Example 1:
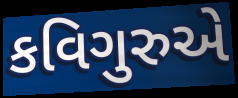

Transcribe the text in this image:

કવિગુરુએ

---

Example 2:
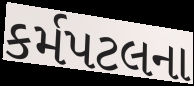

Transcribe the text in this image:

કર્મપટલના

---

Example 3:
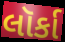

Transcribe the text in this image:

લૉર્કા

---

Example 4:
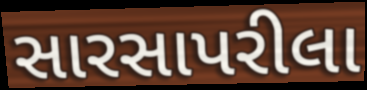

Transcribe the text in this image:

સારસાપરીલા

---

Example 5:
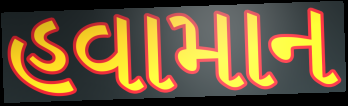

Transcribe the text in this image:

હવામાન